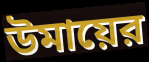
উমায়ের